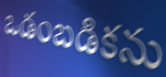
ఒడంబడికను